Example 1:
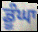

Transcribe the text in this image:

ਡੂੰਘਾ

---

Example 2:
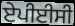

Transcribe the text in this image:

ਏਪੀਈਸੀ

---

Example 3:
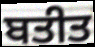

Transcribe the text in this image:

ਬਤੀਤ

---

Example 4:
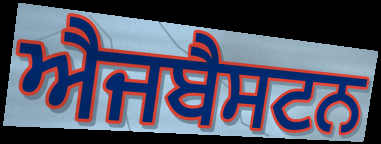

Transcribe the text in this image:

ਐਜਬੈਸਟਨ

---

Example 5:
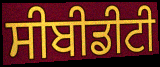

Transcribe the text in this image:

ਸੀਬੀਡੀਟੀ